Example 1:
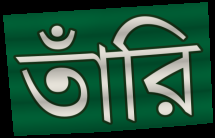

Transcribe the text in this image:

তাঁরি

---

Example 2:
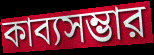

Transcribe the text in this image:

কাব্যসম্ভার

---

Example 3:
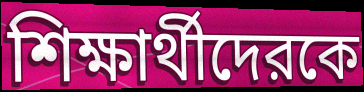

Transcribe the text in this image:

শিক্ষার্থীদেরকে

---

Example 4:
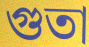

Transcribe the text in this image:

গুতা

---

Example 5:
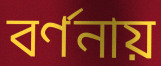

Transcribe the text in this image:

বর্ণনায়